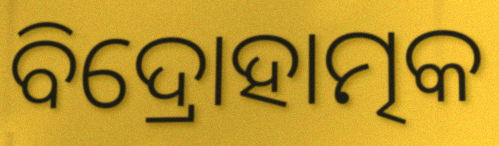
ବିଦ୍ରୋହାତ୍ମକ